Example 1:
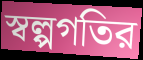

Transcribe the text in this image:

স্বল্পগতির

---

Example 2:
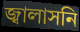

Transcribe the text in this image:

জ্বালাসনি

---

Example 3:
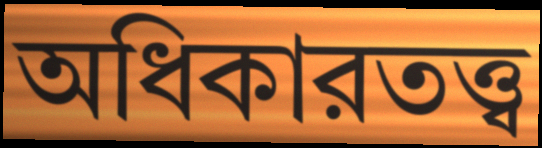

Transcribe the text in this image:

অধিকারতত্ত্ব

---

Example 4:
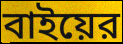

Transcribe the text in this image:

বাইয়ের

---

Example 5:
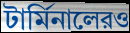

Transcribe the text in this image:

টার্মিনালেরও